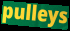
pulleys